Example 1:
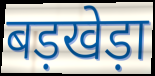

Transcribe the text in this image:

बड़खेड़ा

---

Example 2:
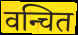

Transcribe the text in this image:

वन्चित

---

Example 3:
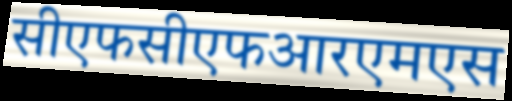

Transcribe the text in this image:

सीएफसीएफआरएमएस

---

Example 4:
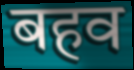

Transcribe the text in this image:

बहव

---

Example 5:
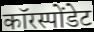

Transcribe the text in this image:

कॉरस्पोंडेट